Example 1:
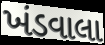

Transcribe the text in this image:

ખંડવાલા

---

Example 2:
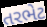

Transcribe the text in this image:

તરભેટ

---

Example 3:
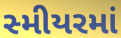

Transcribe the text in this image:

સ્મીયરમાં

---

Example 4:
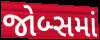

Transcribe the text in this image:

જોબ્સમાં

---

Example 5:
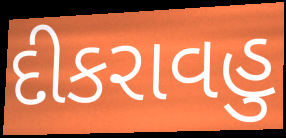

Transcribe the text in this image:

દીકરાવહુ